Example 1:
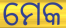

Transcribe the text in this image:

ମେକ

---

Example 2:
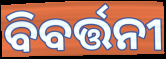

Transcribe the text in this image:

ବିବର୍ତ୍ତନୀ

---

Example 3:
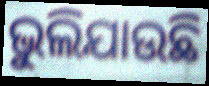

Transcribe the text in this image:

ଭୁଲିଯାଉଛି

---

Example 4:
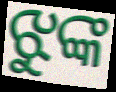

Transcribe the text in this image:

ଝୁଙ୍କ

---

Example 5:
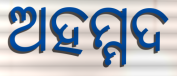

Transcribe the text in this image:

ଅହମ୍ମଦ